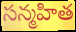
సన్మహిత